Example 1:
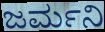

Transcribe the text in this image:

ಜರ್ಮನಿ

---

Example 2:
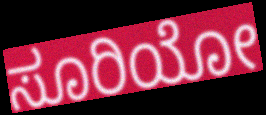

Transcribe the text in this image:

ಸೂರಿಯೋ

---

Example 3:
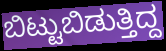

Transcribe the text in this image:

ಬಿಟ್ಟುಬಿಡುತ್ತಿದ್ದ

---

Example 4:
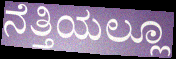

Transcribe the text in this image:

ನೆತ್ತಿಯಲ್ಲೂ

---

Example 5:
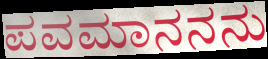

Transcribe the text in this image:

ಪವಮಾನನನು